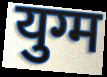
युग्म